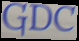
GDC